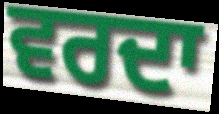
ਵਰਦਾ